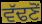
ਵੱਢਣੋਂ